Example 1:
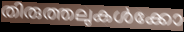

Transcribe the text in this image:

തിരുത്തലുകൾക്കോ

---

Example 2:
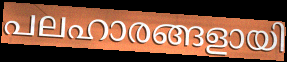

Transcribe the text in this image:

പലഹാരങ്ങളായി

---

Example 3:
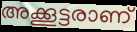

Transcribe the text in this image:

അക്കൂട്ടരാണ്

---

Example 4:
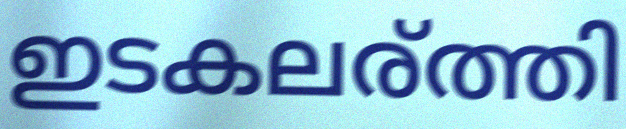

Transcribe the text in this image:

ഇടകലര്ത്തി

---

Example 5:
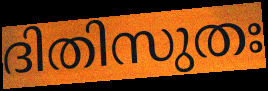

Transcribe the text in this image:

ദിതിസുതഃ